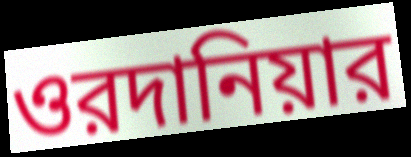
ওরদানিয়ার